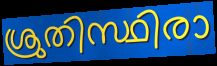
ശ്രുതിസ്ഥിരാ